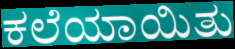
ಕಲೆಯಾಯಿತು